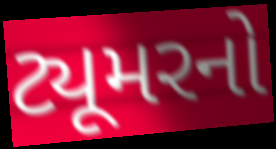
ટ્યૂમરનો